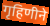
गृहिणीने